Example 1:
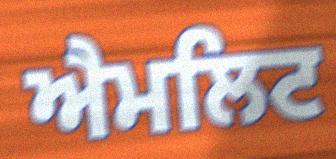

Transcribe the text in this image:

ਐਮਲਿਟ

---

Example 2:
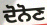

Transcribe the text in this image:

ਦੋਨੋਣ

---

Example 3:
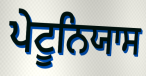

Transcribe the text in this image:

ਪੇਟੂਨਿਯਾਸ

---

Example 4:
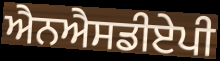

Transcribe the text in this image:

ਐਨਐਸਡੀਏਪੀ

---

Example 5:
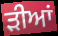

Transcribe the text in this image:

ੜੀਆਂ